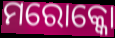
ମରୋକ୍କୋ